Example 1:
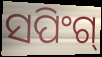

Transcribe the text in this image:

ସପିଂଗ୍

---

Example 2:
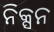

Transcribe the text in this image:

ନିକ୍ସନ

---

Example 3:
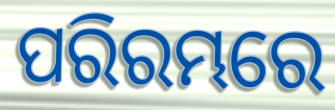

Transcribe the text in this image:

ପରିରମ୍ଭରେ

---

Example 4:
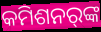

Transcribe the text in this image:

କମିଶନର୍‌ଙ୍କ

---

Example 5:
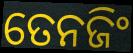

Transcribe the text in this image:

ତେନଜିଂ